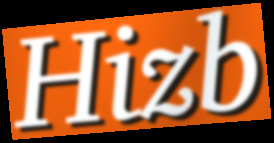
Hizb